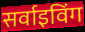
सर्वाइविंग